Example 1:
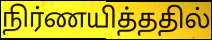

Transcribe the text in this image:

நிர்ணயித்ததில்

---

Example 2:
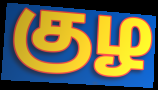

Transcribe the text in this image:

குழ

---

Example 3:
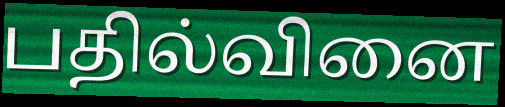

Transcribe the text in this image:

பதில்வினை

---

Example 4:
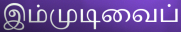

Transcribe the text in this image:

இம்முடிவைப்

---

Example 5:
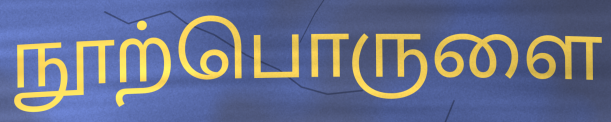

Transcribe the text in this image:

நூற்பொருளை